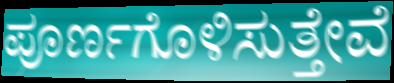
ಪೂರ್ಣಗೊಳಿಸುತ್ತೇವೆ